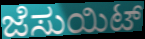
ಜೆಸುಯಿಟ್